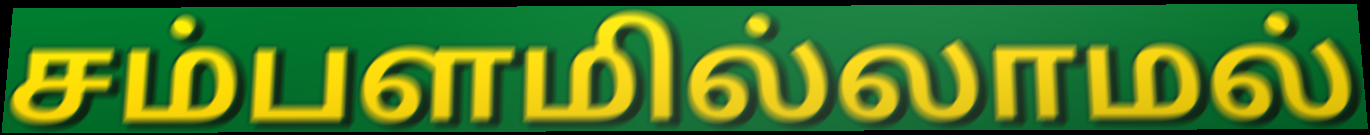
சம்பளமில்லாமல்